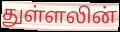
துள்ளலின்